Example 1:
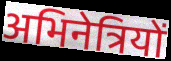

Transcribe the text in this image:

अभिनेत्रियों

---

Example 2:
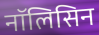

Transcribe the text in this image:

नॉलिसिन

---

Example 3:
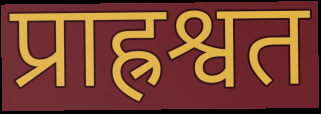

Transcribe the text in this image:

प्राह्रश्वत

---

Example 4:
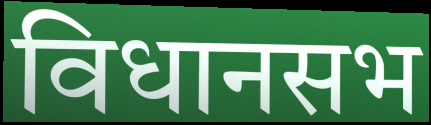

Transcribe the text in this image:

विधानसभ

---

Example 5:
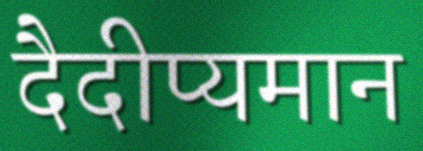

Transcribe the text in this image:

दैदीप्यमान